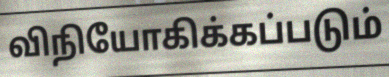
விநியோகிக்கப்படும்